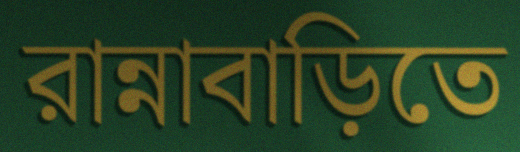
রান্নাবাড়িতে